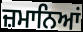
ਜ਼ਮਾਨਿਆਂ